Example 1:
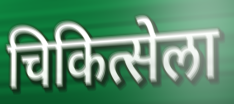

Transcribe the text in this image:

चिकित्सेला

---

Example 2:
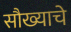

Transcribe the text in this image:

सौख्याचे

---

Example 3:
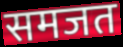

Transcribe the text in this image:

समजत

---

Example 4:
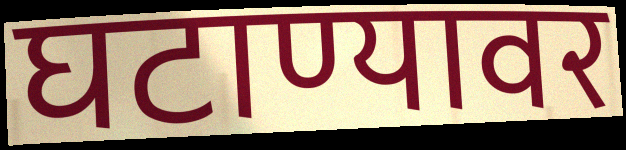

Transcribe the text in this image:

घटाण्यावर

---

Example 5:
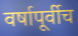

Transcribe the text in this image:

वर्षापूर्वीच